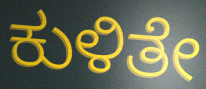
ಕುಳಿತೇ